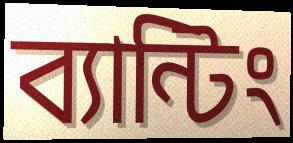
ব্যান্টিং